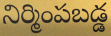
నిర్మింపబడ్డ